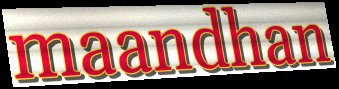
maandhan